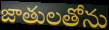
జాతులతోను